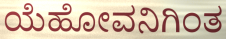
ಯೆಹೋವನಿಗಿಂತ